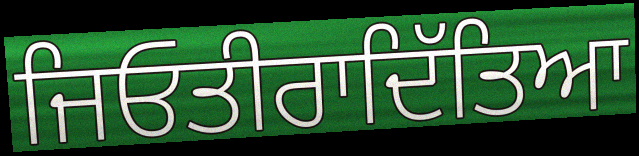
ਜਿਓਤੀਰਾਦਿੱਤਿਆ